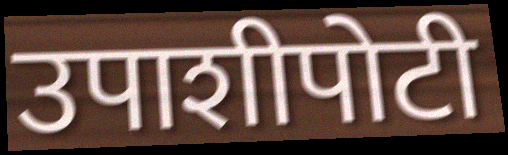
उपाशीपोटी